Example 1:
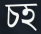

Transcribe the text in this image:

চহ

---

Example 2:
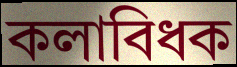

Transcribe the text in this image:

কলাবিধক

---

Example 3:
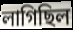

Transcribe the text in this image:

লাগিছিল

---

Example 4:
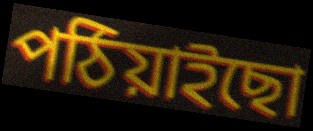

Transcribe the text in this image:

পঠিয়াইছো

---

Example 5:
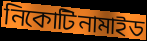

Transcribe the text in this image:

নিকোটিনামাইড